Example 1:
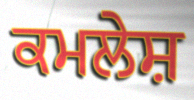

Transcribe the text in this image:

ਕਮਲੇਸ਼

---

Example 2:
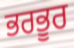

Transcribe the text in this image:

ਭਰਭੂਰ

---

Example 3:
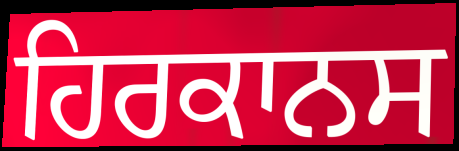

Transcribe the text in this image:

ਹਿਰਕਾਨਸ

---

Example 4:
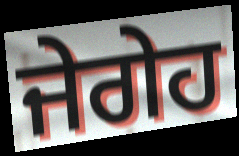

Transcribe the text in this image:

ਜੇਗੇਹ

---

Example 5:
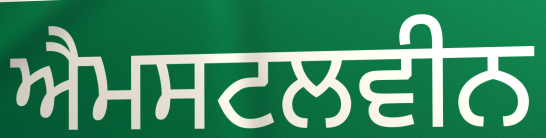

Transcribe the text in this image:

ਐਮਸਟਲਵੀਨ